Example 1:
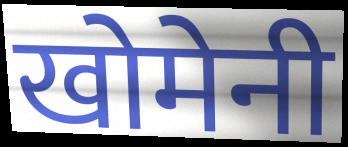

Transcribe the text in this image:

खोमेनी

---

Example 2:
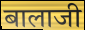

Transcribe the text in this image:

बालाजी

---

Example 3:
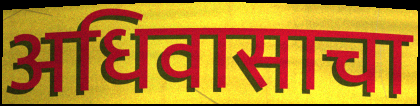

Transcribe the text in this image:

अधिवासाचा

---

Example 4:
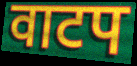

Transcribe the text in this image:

वाटप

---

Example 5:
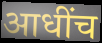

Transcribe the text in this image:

आधींच